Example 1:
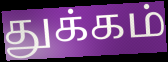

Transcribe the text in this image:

துக்கம்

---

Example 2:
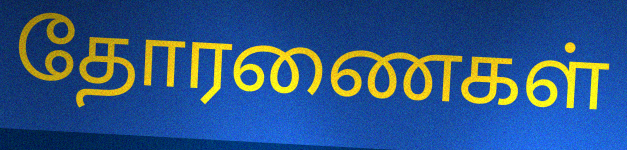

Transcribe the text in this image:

தோரணைகள்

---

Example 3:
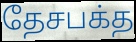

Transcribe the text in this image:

தேசபக்த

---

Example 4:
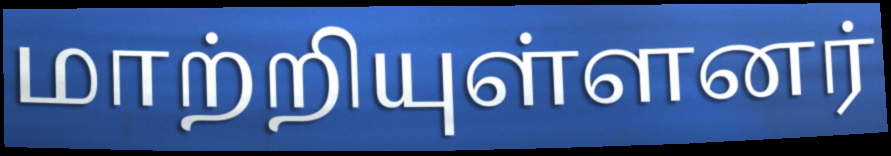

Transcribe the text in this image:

மாற்றியுள்ளனர்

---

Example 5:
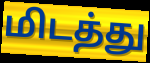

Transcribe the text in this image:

மிடத்து